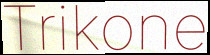
Trikone